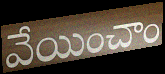
వేయించాం